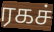
ரகச்